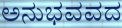
ಅನುಭವವದ